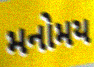
મનોમય